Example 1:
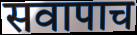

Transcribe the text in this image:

सवापाच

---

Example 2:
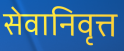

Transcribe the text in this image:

सेवानिवृत्त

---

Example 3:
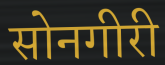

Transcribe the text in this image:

सोनगीरी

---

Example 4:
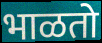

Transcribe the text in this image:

भाळतो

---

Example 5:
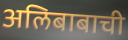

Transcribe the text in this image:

अलिबाबाची